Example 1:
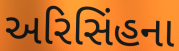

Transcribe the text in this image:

અરિસિંહના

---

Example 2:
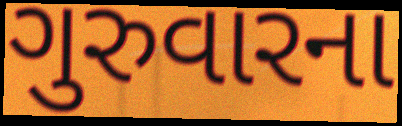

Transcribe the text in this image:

ગુરુવારના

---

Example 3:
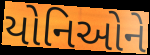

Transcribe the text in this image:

યોનિઓને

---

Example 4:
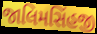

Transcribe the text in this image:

જાલિમસિંહજી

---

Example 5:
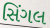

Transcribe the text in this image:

સિંગલ